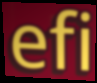
efi